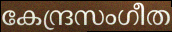
കേന്ദ്രസംഗീത